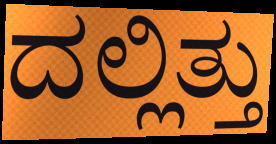
ದಲ್ಲಿತ್ತು